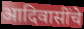
आदिवासींचे